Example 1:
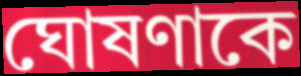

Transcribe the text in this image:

ঘোষণাকে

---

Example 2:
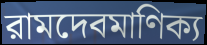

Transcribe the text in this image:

রামদেবমাণিক্য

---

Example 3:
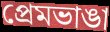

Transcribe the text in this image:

প্রেমভাঙা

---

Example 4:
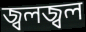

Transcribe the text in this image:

জ্বলজ্বল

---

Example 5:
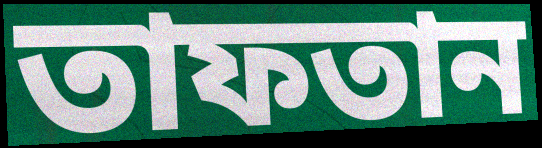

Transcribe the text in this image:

তাফতান